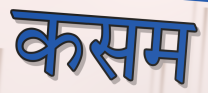
कसम